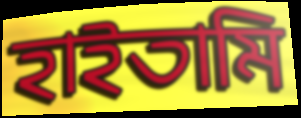
হাইতামি